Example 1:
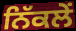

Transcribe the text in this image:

ਨਿੱਕਲੇਂ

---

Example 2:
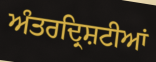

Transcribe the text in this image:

ਅੰਤਰਦ੍ਰਿਸ਼ਟੀਆਂ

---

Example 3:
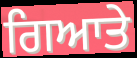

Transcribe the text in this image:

ਗਿਆਤੇ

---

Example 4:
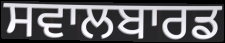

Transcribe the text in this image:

ਸਵਾਲਬਾਰਡ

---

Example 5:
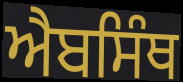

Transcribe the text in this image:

ਐਬਸਿੰਥ